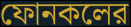
ফোনকলের